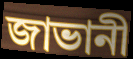
জাভানী